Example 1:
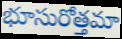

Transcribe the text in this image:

భూసురోత్తమా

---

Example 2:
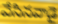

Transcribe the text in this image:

వేసినవాడై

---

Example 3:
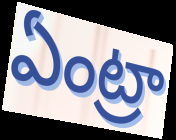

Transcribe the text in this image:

ఏంట్రా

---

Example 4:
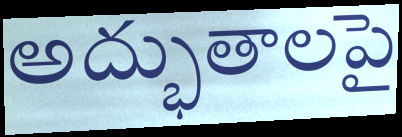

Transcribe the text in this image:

అద్భుతాలపై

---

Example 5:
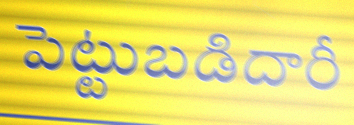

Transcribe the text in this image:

పెట్టుబడిదారీ